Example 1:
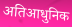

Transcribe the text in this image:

अतिआधुनिक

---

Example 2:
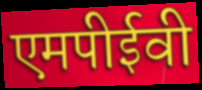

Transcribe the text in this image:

एमपीईवी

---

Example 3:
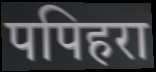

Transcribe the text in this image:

पपिहरा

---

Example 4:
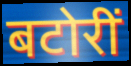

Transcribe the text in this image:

बटोरीं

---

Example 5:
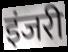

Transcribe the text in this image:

इंजरी